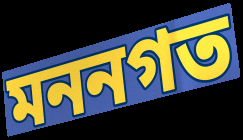
মননগত